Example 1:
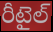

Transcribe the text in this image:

రీటైల్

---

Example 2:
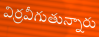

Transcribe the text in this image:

విర్రవీగుతున్నారు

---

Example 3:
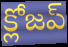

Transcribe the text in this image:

క్లోజప్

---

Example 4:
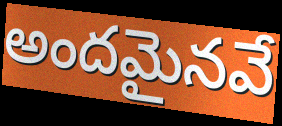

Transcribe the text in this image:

అందమైనవే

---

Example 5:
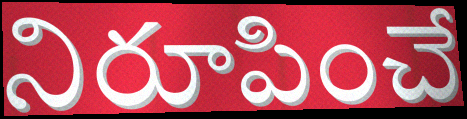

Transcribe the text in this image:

నిరూపించే